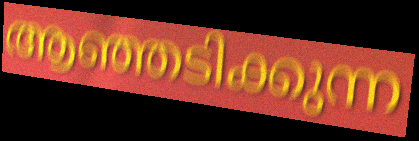
ആഞ്ഞടിക്കുന്ന